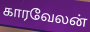
காரவேலன்